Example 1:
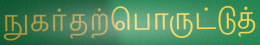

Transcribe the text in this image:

நுகர்தற்பொருட்டுத்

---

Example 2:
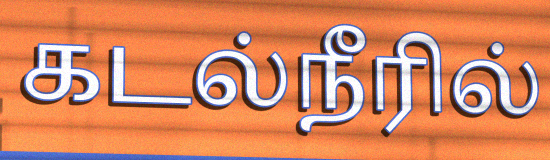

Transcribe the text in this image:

கடல்நீரில்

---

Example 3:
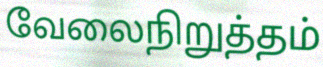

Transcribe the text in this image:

வேலைநிறுத்தம்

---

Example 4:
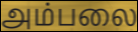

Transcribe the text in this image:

அம்பலை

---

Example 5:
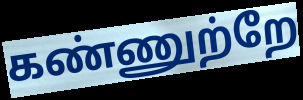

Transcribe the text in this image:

கண்ணுற்றே